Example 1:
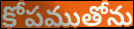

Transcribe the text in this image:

కోపముతోను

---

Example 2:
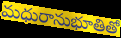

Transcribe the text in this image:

మధురానుభూతితో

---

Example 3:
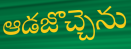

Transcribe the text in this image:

ఆడజొచ్చెను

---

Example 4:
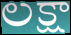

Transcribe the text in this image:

లక్షా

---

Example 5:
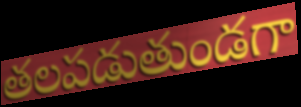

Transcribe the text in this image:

తలపడుతుండగా